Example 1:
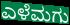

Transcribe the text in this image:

ಎಳೆಮಗು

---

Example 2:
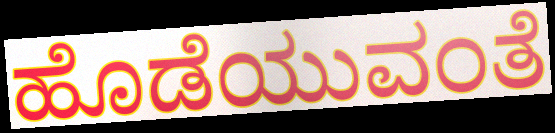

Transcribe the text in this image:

ಹೊಡೆಯುವಂತೆ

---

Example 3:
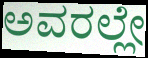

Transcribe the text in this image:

ಅವರಲ್ಲೇ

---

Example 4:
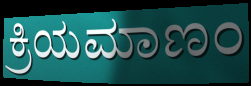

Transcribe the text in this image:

ಕ್ರಿಯಮಾಣಂ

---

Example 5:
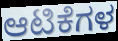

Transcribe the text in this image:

ಆಟಿಕೆಗಳ